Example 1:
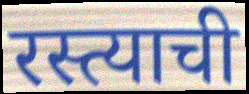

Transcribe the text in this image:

रस्त्याची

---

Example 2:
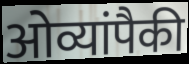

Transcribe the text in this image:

ओव्यांपैकी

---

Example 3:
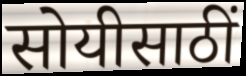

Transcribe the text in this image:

सोयीसाठीं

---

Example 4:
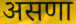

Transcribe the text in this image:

असणा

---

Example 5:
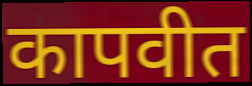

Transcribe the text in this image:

कापवीत